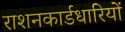
राशनकार्डधारियों